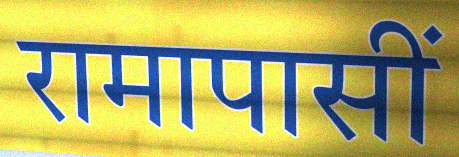
रामापासीं